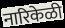
नारिकेळी